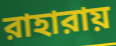
রাহারায়